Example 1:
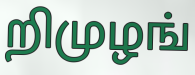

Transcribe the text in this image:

றிமுழங்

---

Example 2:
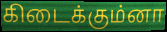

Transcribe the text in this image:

கிடைக்கும்னா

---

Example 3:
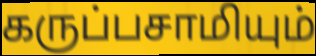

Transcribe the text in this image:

கருப்பசாமியும்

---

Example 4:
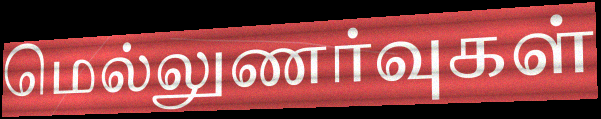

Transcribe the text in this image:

மெல்லுணர்வுகள்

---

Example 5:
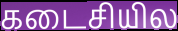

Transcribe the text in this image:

கடைசியில